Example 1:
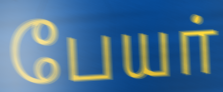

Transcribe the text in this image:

பேயர்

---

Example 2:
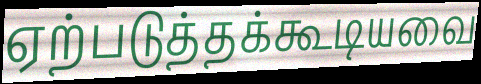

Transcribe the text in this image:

ஏற்படுத்தக்கூடியவை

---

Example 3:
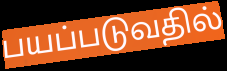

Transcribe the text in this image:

பயப்படுவதில்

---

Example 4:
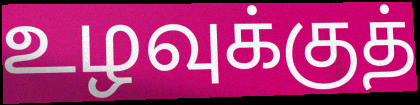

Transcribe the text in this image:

உழவுக்குத்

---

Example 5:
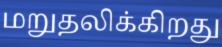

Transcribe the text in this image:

மறுதலிக்கிறது